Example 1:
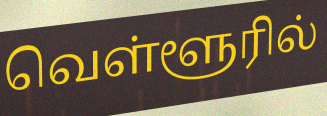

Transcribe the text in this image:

வெள்ளூரில்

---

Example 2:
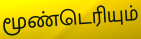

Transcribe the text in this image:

மூண்டெரியும்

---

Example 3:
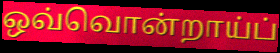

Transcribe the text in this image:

ஒவ்வொன்றாய்ப்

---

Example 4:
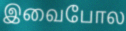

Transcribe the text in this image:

இவைபோல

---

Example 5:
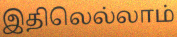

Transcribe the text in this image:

இதிலெல்லாம்